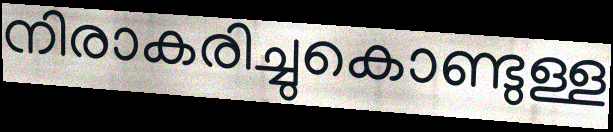
നിരാകരിച്ചുകൊണ്ടുള്ള